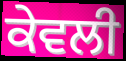
ਕੇਵਲੀ